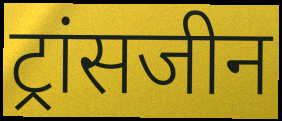
ट्रांसजीन